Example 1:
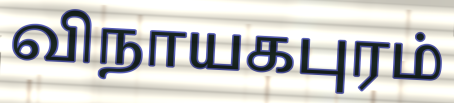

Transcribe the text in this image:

விநாயகபுரம்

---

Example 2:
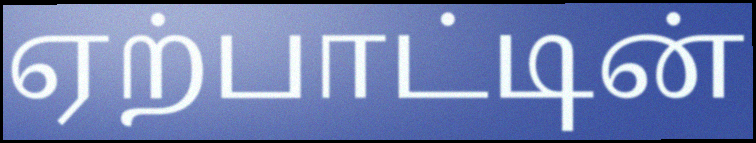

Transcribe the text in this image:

ஏற்பாட்டின்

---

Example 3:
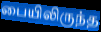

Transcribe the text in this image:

பையிலிருந்த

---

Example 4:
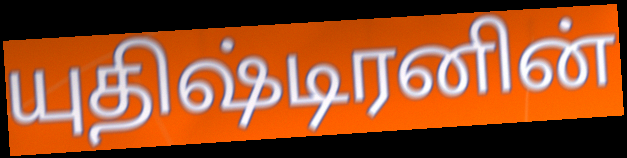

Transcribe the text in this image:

யுதிஷ்டிரனின்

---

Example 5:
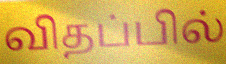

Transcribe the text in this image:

விதப்பில்